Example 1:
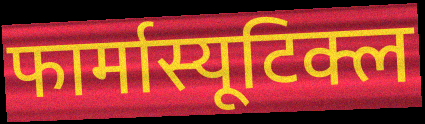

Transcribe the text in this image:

फार्मास्यूटिक्ल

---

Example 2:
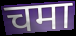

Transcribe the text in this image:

चमा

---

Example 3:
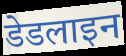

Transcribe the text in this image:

डेडलाइन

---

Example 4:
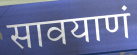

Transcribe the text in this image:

सावयाणं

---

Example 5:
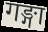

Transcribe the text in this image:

गङ्गा